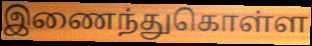
இணைந்துகொள்ள